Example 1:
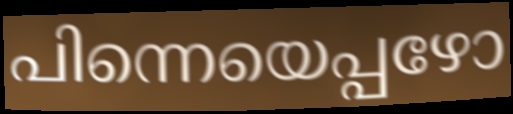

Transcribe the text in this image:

പിന്നെയെപ്പഴോ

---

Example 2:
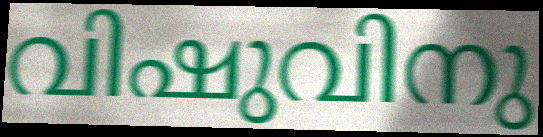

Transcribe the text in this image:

വിഷുവിനു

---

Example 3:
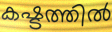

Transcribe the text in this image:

കഷ്ടത്തിൽ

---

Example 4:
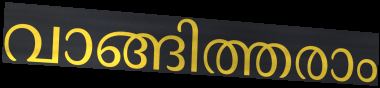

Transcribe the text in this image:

വാങ്ങിത്തരാം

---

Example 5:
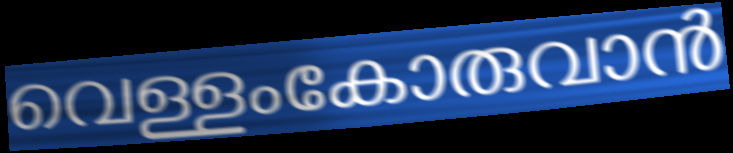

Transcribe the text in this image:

വെള്ളംകോരുവാൻ